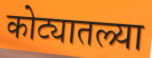
कोट्यातल्या